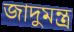
জাদুমন্ত্র